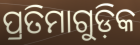
ପ୍ରତିମାଗୁଡ଼ିକ